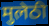
मुलेठी